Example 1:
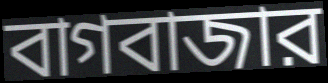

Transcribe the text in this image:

বাগবাজার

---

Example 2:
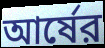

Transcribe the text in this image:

আর্ষের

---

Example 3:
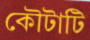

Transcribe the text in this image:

কৌটাটি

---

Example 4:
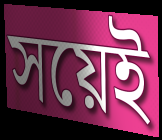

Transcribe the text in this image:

সয়েই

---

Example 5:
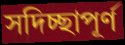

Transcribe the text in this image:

সদিচ্ছাপূর্ণ